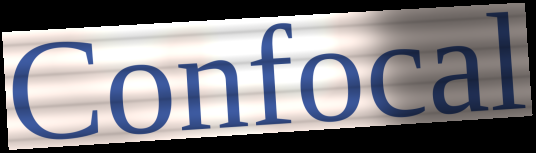
Confocal